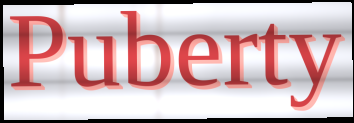
Puberty